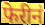
फेरीनं